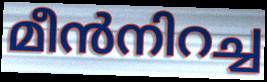
മീൻനിറച്ച